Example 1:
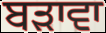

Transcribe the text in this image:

ਬੜਾਵਾ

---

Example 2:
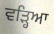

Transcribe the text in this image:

ਵੜ੍ਹਿਆ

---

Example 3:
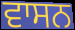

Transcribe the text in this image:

ਵਾਸਨ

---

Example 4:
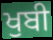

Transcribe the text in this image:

ਖੁਬੀ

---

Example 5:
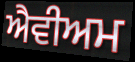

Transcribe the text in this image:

ਐਵੀਅਮ